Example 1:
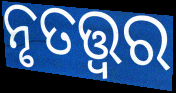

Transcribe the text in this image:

ନୃତତ୍ତ୍ୱର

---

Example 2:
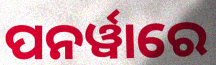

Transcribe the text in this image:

ପନର୍ୱାରେ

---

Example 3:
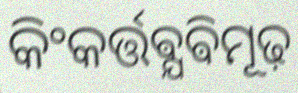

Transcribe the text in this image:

କିଂକର୍ତ୍ତଵ୍ଯଵିମୂଢ଼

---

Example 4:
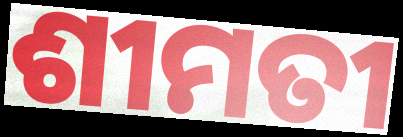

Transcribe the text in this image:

ଶୀମତୀ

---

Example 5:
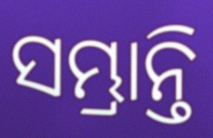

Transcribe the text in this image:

ସମ୍ଭ୍ରାନ୍ତି